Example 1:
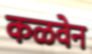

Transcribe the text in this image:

कळवेन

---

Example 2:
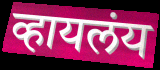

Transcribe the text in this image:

व्हायलंय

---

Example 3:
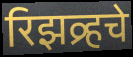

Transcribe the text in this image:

रिझव्र्हचे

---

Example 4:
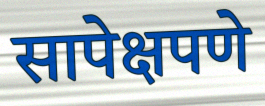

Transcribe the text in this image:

सापेक्षपणे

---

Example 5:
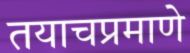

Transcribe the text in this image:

तयाचप्रमाणे